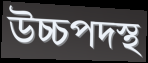
উচ্চপদস্থ